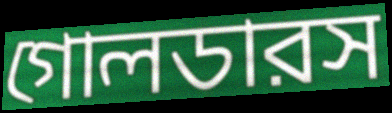
গোলডারস